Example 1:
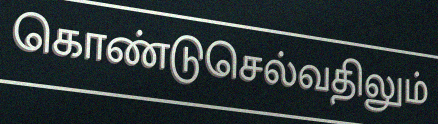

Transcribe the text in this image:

கொண்டுசெல்வதிலும்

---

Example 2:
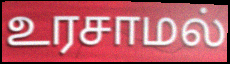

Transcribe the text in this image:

உரசாமல்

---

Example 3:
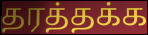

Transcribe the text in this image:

தரத்தக்க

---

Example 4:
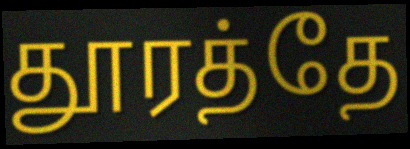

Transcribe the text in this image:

தூரத்தே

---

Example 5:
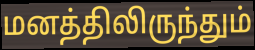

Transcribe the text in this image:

மனத்திலிருந்தும்